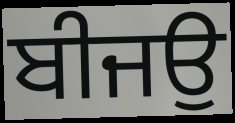
ਬੀਜਉ